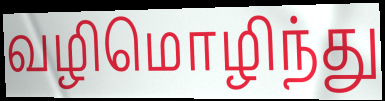
வழிமொழிந்து